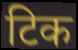
टिक